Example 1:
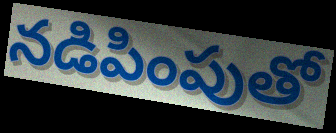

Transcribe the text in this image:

నడిపింపుతో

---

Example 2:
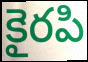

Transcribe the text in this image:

కైరపి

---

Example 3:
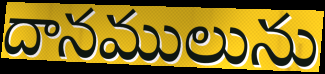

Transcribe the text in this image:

దానములును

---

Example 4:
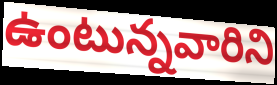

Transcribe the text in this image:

ఉంటున్నవారిని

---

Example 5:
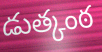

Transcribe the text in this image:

డుత్కంఠ